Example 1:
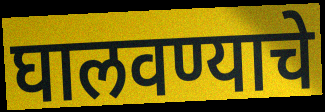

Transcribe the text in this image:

घालवण्याचे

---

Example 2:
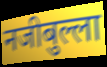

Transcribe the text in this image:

नजीबुल्ला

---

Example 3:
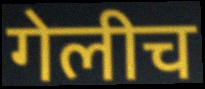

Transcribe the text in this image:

गेलीच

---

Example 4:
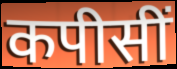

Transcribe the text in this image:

कपीसीं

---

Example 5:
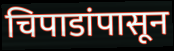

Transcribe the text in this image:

चिपाडांपासून